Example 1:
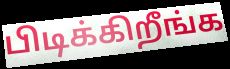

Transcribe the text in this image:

பிடிக்கிறீங்க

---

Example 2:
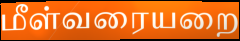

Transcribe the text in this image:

மீள்வரையறை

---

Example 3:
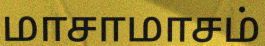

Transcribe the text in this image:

மாசாமாசம்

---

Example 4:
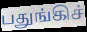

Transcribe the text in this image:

பதுங்கிச்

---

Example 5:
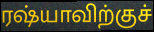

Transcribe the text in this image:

ரஷ்யாவிற்குச்